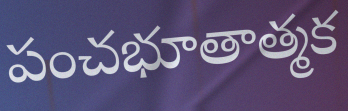
పంచభూతాత్మక